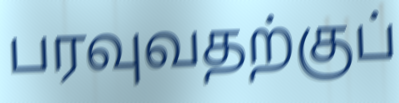
பரவுவதற்குப்